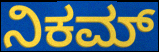
ನಿಕಮ್